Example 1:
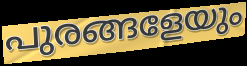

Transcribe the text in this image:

പുരങ്ങളേയും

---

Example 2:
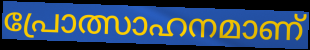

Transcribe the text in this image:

പ്രോത്സാഹനമാണ്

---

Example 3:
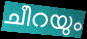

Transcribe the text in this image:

ചീറയും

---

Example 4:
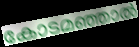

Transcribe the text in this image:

കോടമഞ്ഞാൽ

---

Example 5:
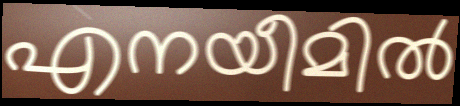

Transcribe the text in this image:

എനയീമിൽ